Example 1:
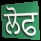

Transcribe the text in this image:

ਲੋਫ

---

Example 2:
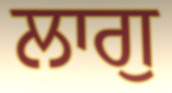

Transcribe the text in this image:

ਲਾਗੁ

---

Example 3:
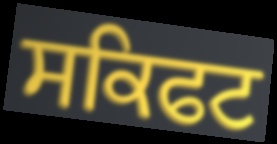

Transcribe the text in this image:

ਸਕਿਫਟ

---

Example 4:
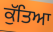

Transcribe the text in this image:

ਕੁੱਤਿਆ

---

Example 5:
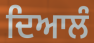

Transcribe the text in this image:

ਦਿਆਲੰ